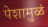
पेशामुळं